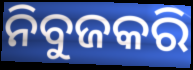
ନିବୁଜକରି